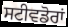
ਸਟੀਵਡੋਰਾਂ